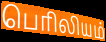
பெரிலியம்